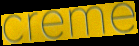
creme